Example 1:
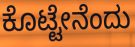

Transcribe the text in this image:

ಕೊಟ್ಟೇನೆಂದು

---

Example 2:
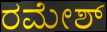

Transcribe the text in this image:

ರಮೇಶ್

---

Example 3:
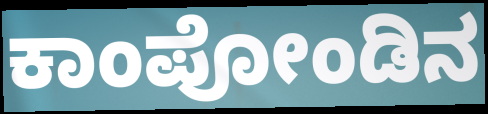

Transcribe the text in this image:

ಕಾಂಪೋಂಡಿನ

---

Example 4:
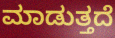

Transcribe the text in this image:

ಮಾಡುತ್ತದೆ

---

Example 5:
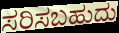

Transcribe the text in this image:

ಸರಿಸಬಹುದು